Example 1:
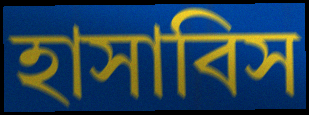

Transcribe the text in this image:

হাসাবিস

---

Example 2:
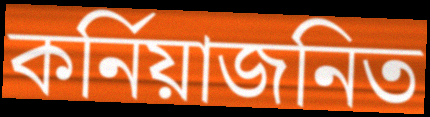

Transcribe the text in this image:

কর্নিয়াজনিত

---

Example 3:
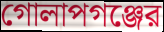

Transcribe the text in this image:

গোলাপগঞ্জের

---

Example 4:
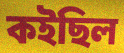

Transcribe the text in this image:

কইছিল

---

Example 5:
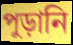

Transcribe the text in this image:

পুড়ানি